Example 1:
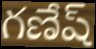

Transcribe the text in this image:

గణేష్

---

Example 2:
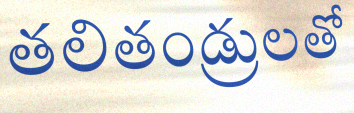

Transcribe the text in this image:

తలితండ్రులతో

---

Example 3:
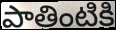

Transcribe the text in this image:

పాతింటికి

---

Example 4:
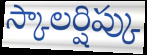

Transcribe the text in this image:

స్కాలర్షిప్కు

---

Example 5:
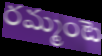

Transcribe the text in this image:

రమ్మంటె